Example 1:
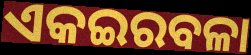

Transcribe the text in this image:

ଏକଇରବଳା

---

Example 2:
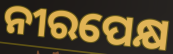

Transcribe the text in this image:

ନୀରପେକ୍ଷ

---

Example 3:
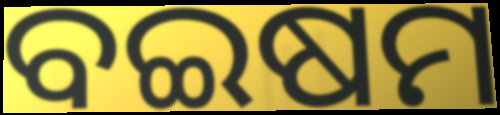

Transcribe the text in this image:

ବଇଷମ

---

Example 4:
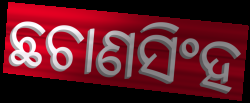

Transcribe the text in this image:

ଛଚାଣସିଂହ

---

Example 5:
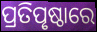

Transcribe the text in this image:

ପ୍ରତିପୃଷ୍ଠାରେ